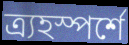
ত্র্যহস্পর্শে